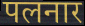
पलनार